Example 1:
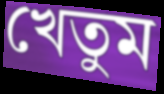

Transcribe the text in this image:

খেতুম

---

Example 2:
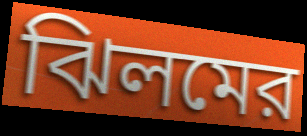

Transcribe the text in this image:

ঝিলমের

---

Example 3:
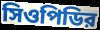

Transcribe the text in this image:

সিওপিডির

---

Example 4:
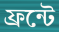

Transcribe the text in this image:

ফ্রন্টে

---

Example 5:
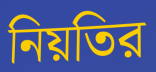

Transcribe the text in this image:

নিয়তির